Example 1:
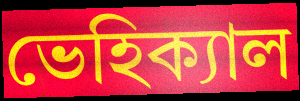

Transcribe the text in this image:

ভেহিক্যাল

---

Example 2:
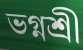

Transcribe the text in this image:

ভগ্নশ্রী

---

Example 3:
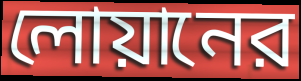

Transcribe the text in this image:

লোয়ানের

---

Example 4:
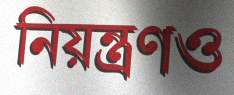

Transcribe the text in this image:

নিয়ন্ত্রণও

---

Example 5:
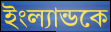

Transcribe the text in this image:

ইংল্যান্ডকে